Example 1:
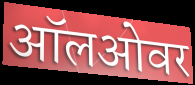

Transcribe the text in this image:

ऑलओवर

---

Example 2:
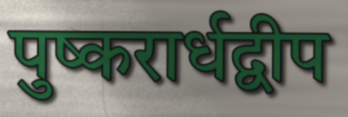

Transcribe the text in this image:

पुष्करार्धद्वीप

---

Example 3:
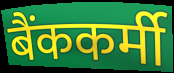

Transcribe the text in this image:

बैंककर्मी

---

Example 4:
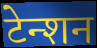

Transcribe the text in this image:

टेन्शन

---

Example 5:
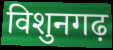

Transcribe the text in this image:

विशुनगढ़